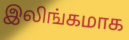
இலிங்கமாக